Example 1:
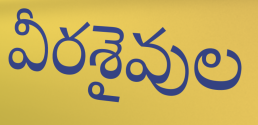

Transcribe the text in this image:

వీరశైవుల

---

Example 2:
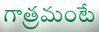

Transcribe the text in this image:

గాత్రమంటే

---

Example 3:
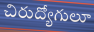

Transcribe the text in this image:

చిరుద్యోగులూ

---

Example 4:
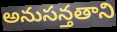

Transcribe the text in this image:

అనుసన్తతాని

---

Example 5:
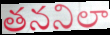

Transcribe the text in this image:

తననిలా